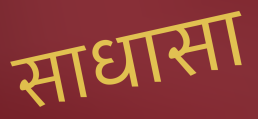
साधासा